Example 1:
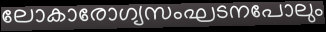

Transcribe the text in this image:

ലോകാരോഗ്യസംഘടനപോലും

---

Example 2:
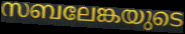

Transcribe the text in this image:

സബലേങ്കയുടെ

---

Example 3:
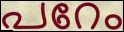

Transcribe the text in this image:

പറേം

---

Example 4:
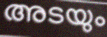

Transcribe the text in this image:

അടയും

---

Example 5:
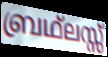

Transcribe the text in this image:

ബ്രഥ്ലസ്സ്